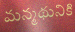
మన్మథునికి